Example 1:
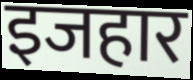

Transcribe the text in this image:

इजहार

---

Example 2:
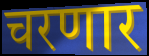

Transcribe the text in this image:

चरणार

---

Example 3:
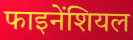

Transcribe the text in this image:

फाइनेंशियल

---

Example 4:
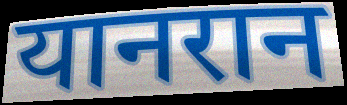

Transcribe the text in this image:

यानरान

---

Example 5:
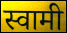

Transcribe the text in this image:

स्वामी